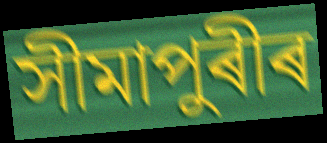
সীমাপুৰীৰ